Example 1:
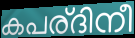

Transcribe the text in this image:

കപര്ദിനീ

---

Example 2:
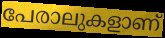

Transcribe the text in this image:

പേരാലുകളാണ്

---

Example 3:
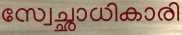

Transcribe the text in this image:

സ്വേച്ഛാധികാരി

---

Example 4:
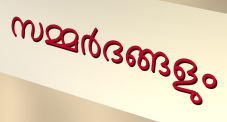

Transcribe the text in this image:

സമ്മർദങ്ങളും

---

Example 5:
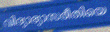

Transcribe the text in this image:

വിദ്യാഭ്യാസരീതിയെ